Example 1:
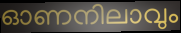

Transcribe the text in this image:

ഓണനിലാവും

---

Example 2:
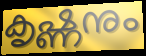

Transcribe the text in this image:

കൃഷ്ണനും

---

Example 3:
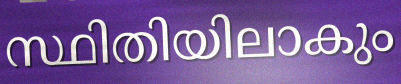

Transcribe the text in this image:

സ്ഥിതിയിലാകും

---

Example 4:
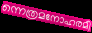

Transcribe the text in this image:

ന്നെത്രമനോഹരമീ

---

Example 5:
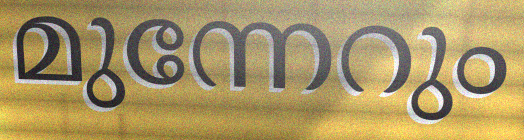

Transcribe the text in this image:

മുന്നേറും